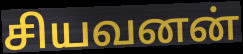
சியவனன்